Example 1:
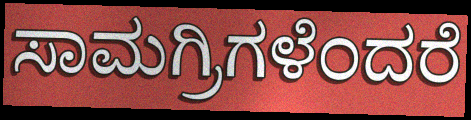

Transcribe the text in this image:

ಸಾಮಗ್ರಿಗಳೆಂದರೆ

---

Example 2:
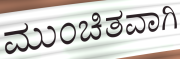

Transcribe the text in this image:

ಮುಂಚಿತವಾಗಿ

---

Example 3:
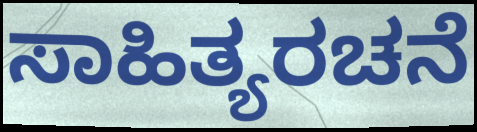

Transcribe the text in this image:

ಸಾಹಿತ್ಯರಚನೆ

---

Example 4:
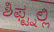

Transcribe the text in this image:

ಶಿಫ್ಟ್ನಲ್ಲಿ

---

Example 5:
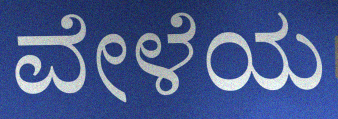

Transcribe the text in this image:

ವೇಳೆಯ